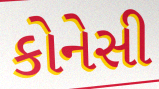
કોનેસી